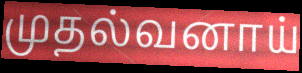
முதல்வனாய்